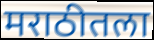
मराठीतला